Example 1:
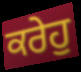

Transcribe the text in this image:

ਕਰੇਹੁ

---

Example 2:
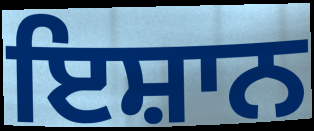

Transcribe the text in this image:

ਇਸ਼ਾਨ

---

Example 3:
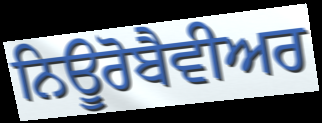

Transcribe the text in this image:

ਨਿਊਰੋਬੈਵੀਅਰ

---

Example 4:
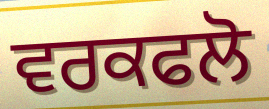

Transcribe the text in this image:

ਵਰਕਫਲੋ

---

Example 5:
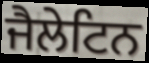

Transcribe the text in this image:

ਜੈਲੇਟਿਨ